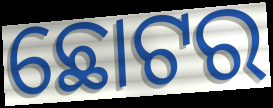
ଛୋଟର